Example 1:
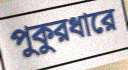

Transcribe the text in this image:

পুকুরধারে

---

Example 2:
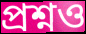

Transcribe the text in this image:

প্রশ্নও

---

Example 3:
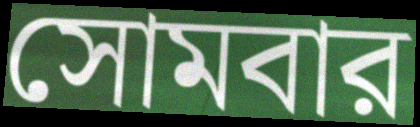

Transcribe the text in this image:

সোমবার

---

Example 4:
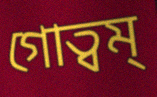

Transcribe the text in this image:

গোত্বম্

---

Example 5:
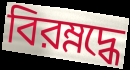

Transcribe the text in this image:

বিরম্নদ্ধে